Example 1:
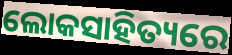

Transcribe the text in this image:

ଲୋକସାହିତ୍ୟରେ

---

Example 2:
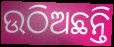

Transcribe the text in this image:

ଉଠିଅଛନ୍ତି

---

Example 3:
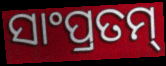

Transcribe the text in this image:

ସାଂପ୍ରତମ୍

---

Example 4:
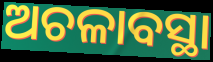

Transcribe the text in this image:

ଅଚଳାବସ୍ଥା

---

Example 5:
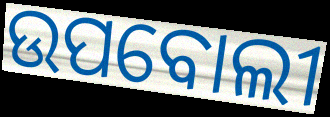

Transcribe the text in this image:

ଉପବୋଲୀ